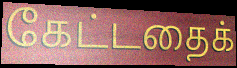
கேட்டதைக்